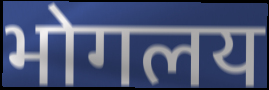
भोगलय